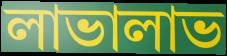
লাভালাভ